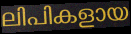
ലിപികളായ